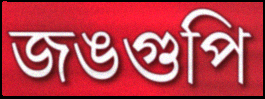
জঙগুপি